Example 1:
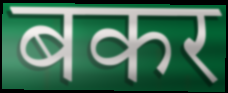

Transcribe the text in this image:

बकर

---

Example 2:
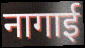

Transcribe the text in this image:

नागाई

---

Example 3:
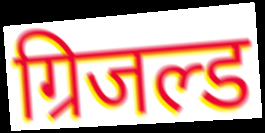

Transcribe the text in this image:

ग्रिजल्ड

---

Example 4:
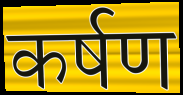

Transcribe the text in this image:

कर्षण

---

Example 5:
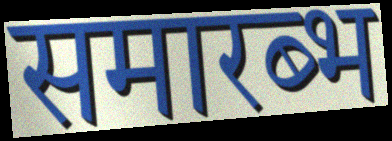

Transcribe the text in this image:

समारब्भ